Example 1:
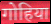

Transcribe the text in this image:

गोहिया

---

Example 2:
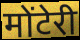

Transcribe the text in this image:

मोंटेरी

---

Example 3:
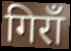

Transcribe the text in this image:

गिराँ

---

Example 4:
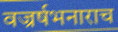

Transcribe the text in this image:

वज्रर्षभनाराच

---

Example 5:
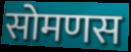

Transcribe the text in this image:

सोमणस